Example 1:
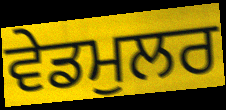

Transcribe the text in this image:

ਵੇਡਮੁਲਰ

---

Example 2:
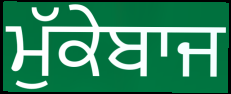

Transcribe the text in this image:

ਮੁੱਕੇਬਾਜ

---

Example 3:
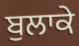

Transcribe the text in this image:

ਬੁਲਾਕੇ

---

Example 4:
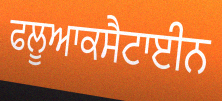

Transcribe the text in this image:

ਫਲੂਆਕਸੈਟਾਈਨ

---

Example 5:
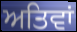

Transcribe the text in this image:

ਅਤਿਵਾਂ